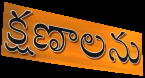
క్షణాలను